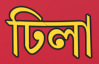
ঢিলা